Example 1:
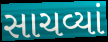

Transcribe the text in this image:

સાચવ્યાં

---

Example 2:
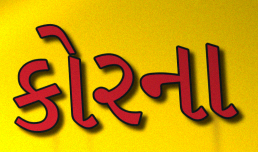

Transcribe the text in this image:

કોરના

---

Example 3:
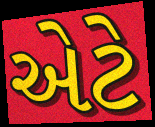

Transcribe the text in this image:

એટે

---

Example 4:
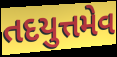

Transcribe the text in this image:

તદયુત્તમેવ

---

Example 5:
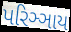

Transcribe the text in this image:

પરિઞ્ઞાય